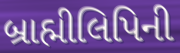
બ્રાહ્મીલિપિની